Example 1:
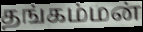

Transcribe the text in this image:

தங்கம்மன்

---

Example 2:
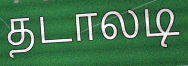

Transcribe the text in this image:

தடாலடி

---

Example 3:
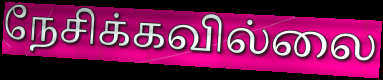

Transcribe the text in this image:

நேசிக்கவில்லை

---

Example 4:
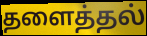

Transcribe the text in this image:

தளைத்தல்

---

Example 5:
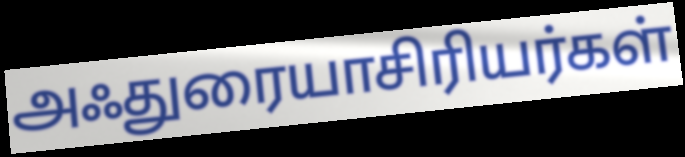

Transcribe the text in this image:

அஃதுரையாசிரியர்கள்